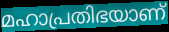
മഹാപ്രതിഭയാണ്